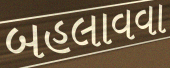
બહલાવવા